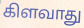
கிளவாது